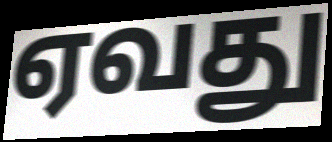
ஏவது